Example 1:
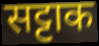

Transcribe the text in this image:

सट्टाक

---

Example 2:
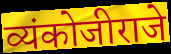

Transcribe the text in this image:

व्यंकोजीराजे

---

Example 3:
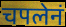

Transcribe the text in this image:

चपलेनं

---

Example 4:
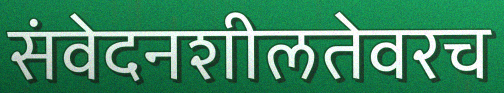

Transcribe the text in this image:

संवेदनशीलतेवरच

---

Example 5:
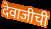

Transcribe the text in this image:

देवाजीची